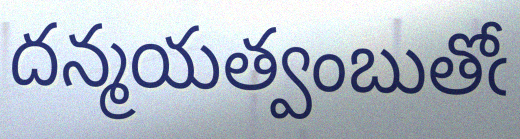
దన్మయత్వంబుతోఁ